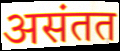
असंतत